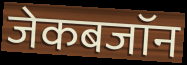
जेकबजॉन